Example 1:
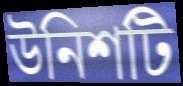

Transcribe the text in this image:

উনিশটি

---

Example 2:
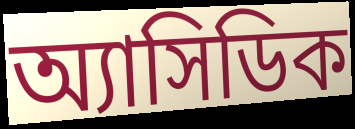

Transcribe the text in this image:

অ্যাসিডিক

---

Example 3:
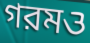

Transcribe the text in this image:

গরমও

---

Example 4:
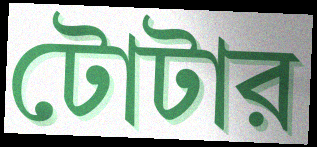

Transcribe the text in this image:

টোটার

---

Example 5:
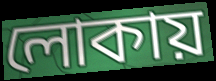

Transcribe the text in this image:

লোকায়